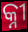
କ୍ନୀ